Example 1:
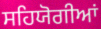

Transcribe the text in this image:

ਸਹਿਯੋਗੀਆਂ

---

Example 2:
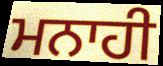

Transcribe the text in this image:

ਮਨਾਹੀ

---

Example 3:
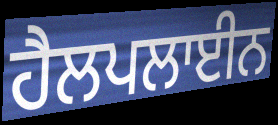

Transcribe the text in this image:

ਹੈਲਪਲਾਈਨ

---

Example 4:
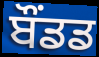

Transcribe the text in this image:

ਬੌਂਡਡ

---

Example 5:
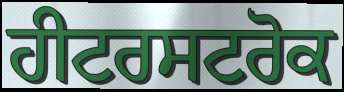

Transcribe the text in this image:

ਹੀਟਰਸਟਰੋਕ